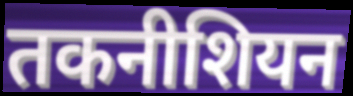
तकनीशियन